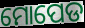
ମୋପେଡ